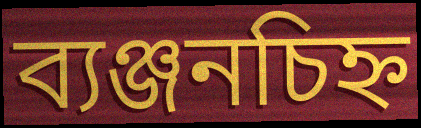
ব্যঞ্জনচিহ্ন